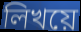
লিখয়ে